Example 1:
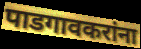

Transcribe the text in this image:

पाडगावकरांना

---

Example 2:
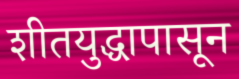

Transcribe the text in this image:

शीतयुद्धापासून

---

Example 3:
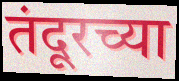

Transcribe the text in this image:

तंदूरच्या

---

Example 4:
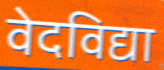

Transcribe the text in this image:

वेदविद्या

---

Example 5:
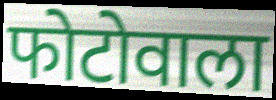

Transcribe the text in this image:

फोटोवाला